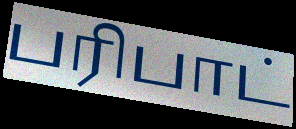
பரிபாட்